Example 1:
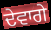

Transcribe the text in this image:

ਦੇਵਾਗੇ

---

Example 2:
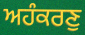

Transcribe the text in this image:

ਅਹੰਕਰਣੁ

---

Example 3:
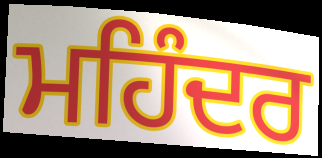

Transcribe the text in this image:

ਮਹਿੰਦਰ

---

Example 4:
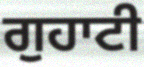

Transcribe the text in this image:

ਗੁਹਾਟੀ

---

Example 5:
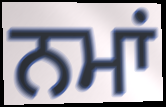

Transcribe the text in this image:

ਨਮਾਂ